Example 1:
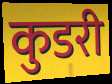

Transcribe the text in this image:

कुडरी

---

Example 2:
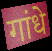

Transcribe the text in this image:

गांधे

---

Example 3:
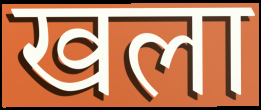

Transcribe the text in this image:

खला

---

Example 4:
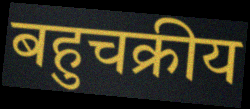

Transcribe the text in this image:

बहुचक्रीय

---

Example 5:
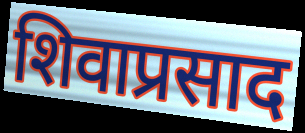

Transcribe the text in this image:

शिवाप्रसाद